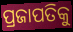
ପ୍ରଜାପତିକୁ